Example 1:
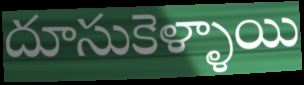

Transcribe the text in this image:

దూసుకెళ్ళాయి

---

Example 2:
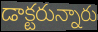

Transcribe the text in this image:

డాక్టరున్నారు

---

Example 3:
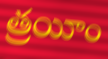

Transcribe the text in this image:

త్రయీం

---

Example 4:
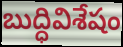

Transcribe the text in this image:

బుద్ధివిశేషం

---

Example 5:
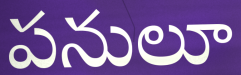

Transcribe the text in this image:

పనులూ